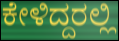
ಕೇಳಿದ್ದರಲ್ಲಿ